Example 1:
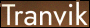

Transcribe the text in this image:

Tranvik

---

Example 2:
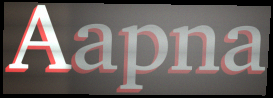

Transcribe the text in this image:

Aapna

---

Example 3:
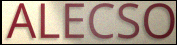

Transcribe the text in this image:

ALECSO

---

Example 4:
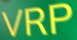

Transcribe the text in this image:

VRP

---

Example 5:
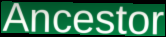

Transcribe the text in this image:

Ancestor